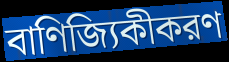
বাণিজ্যিকীকরণ